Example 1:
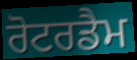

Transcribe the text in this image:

ਰੋਟਰਡੈਮ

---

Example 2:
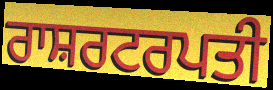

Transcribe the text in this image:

ਰਾਸ਼ਰਟਰਪਤੀ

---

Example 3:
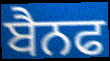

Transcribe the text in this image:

ਬੈਨਫ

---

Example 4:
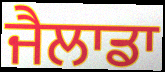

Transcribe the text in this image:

ਜੈਲਾਡਾ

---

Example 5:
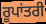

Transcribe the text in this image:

ਰੂਪਾਂਤਰੀ